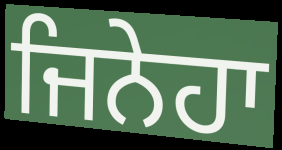
ਜਿਨੇਹਾ